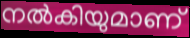
നൽകിയുമാണ്